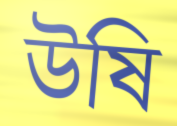
উষি